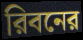
রিবনের